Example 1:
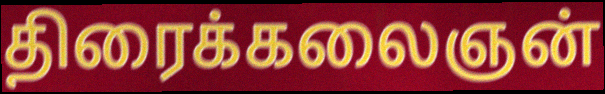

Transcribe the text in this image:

திரைக்கலைஞன்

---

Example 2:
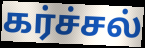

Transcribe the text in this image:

கர்ச்சல்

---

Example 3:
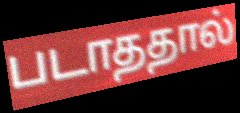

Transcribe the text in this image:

படாததால்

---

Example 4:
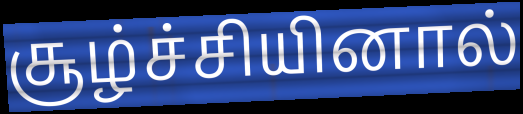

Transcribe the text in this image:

சூழ்ச்சியினால்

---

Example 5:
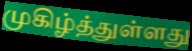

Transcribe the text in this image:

முகிழ்த்துள்ளது